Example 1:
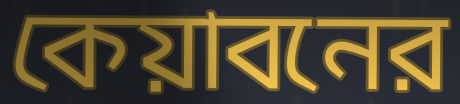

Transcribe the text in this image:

কেয়াবনের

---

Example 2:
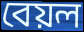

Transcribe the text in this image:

বেয়ল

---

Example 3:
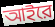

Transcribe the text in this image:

আইরে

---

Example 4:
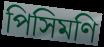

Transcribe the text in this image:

পিসিমণি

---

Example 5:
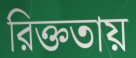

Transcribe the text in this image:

রিক্ততায়